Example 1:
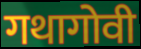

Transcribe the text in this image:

गथागोवी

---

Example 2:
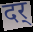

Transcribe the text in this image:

दर्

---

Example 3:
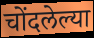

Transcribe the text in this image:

चोंदलेल्या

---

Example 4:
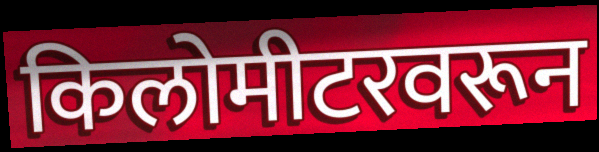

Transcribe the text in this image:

किलोमीटरवरून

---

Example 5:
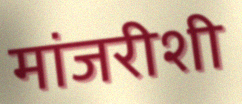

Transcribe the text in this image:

मांजरीशी